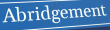
Abridgement